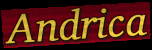
Andrica